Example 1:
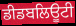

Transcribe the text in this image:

ਡੀਡਬਲਿਊਟੀ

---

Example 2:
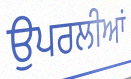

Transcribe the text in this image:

ਉਪਰਲੀਆਂ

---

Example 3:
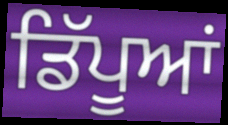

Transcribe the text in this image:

ਡਿੱਪੂਆਂ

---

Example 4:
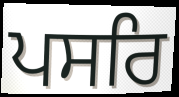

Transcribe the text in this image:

ਪਸਰਿ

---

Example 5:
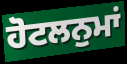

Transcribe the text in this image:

ਹੋਟਲਨੁਮਾਂ